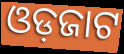
ଓଡ଼ଜାଟ